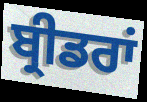
ਬ੍ਰੀਡਰਾਂ